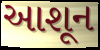
આશૂન